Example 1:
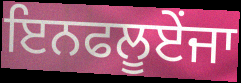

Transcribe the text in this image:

ਇਨਫਲੂਏਂਜਾ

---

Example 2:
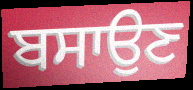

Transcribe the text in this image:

ਬਸਾਉਣ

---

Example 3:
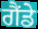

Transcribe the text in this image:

ਗੈਂਡੇ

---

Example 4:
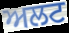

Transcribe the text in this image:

ਅਲਟ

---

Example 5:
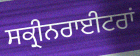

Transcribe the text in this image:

ਸਕ੍ਰੀਨਰਾਈਟਰਾਂ